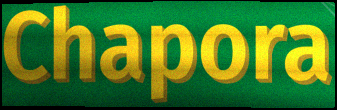
Chapora